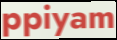
ppiyam